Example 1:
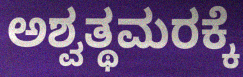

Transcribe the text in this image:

ಅಶ್ವತ್ಥಮರಕ್ಕೆ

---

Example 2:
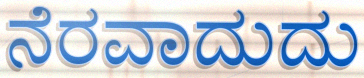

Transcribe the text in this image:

ನೆರವಾದುದು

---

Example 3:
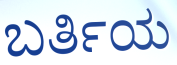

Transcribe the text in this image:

ಬರ್ತಿಯ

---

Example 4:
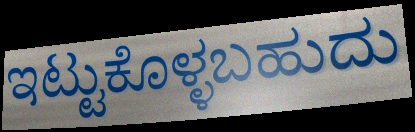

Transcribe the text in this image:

ಇಟ್ಟುಕೊಳ್ಳಬಹುದು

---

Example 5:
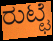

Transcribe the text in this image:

ರುಟ್ಟೆ